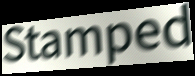
Stamped